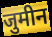
जुमीन